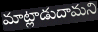
మాట్లాడుదామని